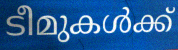
ടീമുകൾക്ക്